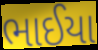
ભાઈયા